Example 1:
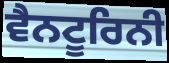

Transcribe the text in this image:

ਵੈਨਟੂਰਿਨੀ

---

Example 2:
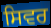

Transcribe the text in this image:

ਸਿਵਰ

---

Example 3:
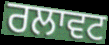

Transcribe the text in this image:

ਰਲਾਵਟ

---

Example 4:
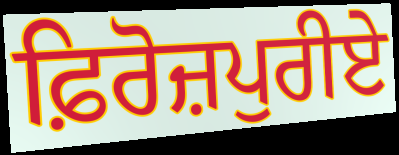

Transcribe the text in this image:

ਫ਼ਿਰੋਜ਼ਪੁਰੀਏ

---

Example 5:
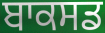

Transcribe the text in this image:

ਬਾਕਸਡ